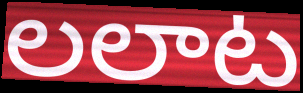
లలాట